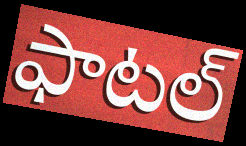
ఫాటల్